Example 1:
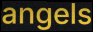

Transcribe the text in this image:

angels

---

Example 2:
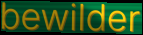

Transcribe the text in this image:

bewilder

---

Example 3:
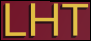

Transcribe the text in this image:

LHT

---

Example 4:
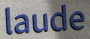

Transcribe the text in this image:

laude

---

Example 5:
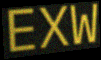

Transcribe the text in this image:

EXW